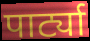
पार्ट्या